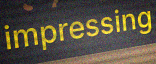
impressing